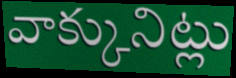
వాక్కునిట్లు